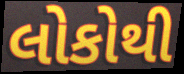
લોકોથી